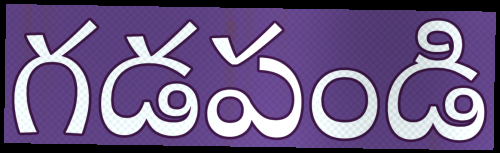
గడపండి